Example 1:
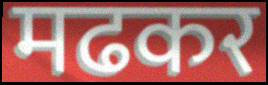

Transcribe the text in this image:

मढकर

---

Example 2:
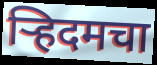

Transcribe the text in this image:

ऱ्हिदमचा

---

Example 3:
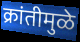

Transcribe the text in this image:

क्रांतीमुळे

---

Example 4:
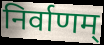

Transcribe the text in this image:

निर्वाणम्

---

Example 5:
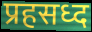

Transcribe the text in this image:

प्रहसध्द